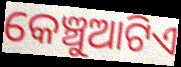
କେଞ୍ଚୁଆଟିଏ